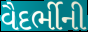
વૈદર્ભીની